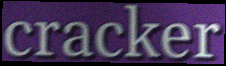
cracker